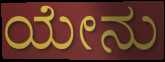
ಯೇನು